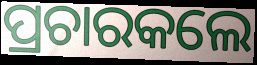
ପ୍ରଚାରକଲେ